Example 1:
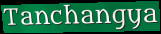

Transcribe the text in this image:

Tanchangya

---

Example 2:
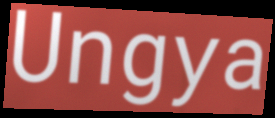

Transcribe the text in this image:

Ungya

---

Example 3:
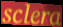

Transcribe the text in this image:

sclera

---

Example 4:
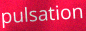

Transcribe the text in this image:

pulsation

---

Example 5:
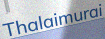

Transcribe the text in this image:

Thalaimurai